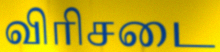
விரிசடை